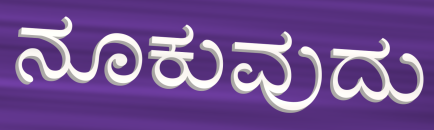
ನೂಕುವುದು